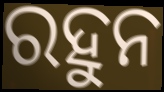
ରହୁନ